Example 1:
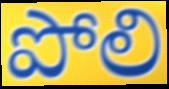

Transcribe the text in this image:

పోలి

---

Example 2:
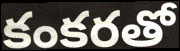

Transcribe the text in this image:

కంకరతో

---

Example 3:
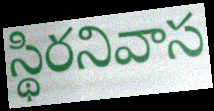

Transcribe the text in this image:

స్థిరనివాస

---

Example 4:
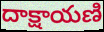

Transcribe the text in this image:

దాక్షాయణి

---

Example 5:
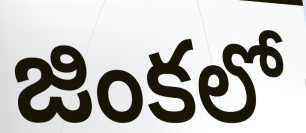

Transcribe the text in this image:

జింకలో